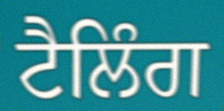
ਟੈਲਿੰਗ